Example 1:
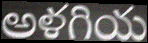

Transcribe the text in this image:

అళగియ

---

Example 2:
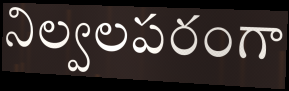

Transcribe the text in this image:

నిల్వలపరంగా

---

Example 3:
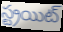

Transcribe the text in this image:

స్ట్రయిట్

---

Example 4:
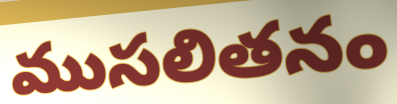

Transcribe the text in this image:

ముసలితనం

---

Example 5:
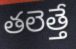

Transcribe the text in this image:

తలెత్తే